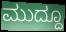
ಮುದ್ದೂ